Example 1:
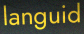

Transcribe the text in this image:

languid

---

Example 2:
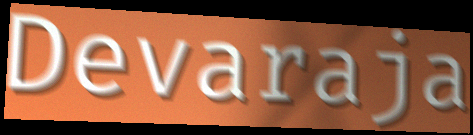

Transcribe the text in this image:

Devaraja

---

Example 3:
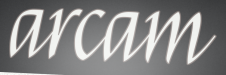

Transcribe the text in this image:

arcam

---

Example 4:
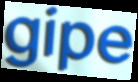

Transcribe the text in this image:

gipe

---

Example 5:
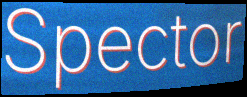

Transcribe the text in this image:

Spector